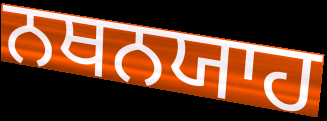
ਨਥਨਯਾਹ